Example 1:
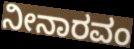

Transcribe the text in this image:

ನೀನಾರವಂ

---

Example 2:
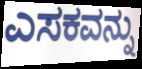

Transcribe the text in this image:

ಎಸಕವನ್ನು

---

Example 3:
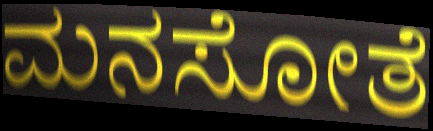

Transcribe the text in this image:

ಮನಸೋತೆ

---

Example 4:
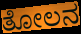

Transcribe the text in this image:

ತೋಲನ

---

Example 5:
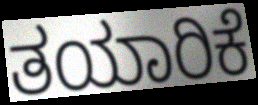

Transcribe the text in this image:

ತಯಾರಿಕೆ